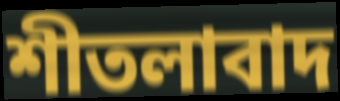
শীতলাবাদ